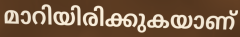
മാറിയിരിക്കുകയാണ്